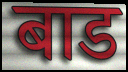
बाड